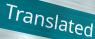
Translated